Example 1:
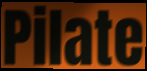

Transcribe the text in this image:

Pilate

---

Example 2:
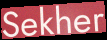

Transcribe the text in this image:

Sekher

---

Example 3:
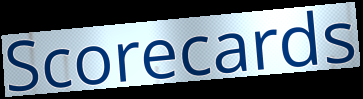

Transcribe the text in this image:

Scorecards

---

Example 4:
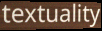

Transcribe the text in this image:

textuality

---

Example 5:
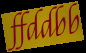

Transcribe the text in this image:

ffddbb